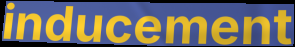
inducement